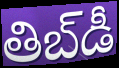
తిబ్‌డీ